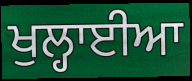
ਖੁਲ੍ਹਾਈਆ